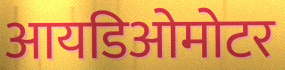
आयडिओमोटर